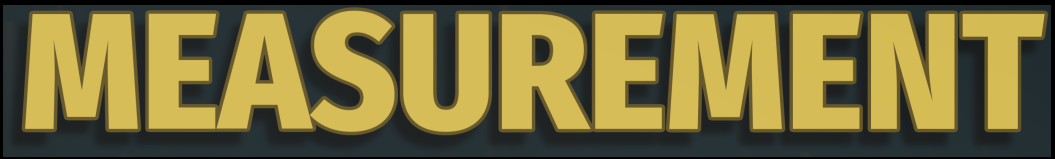
MEASUREMENT